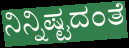
ನಿನ್ನಿಷ್ಟದಂತೆ